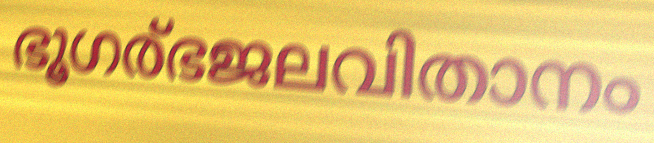
ഭൂഗര്ഭജലവിതാനം